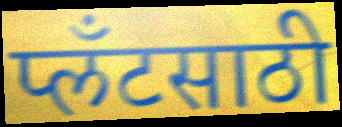
प्लँटसाठी